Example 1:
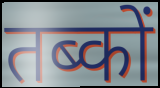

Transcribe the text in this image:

तब्कों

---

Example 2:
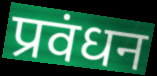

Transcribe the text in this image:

प्रवंधन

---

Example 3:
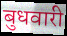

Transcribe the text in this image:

बुधवारी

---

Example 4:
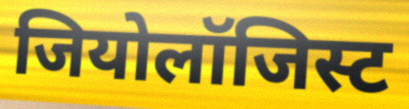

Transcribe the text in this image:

जियोलॉजिस्ट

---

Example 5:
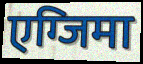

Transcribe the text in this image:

एग्जिमा